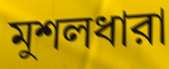
মুশলধারা